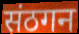
संठगन